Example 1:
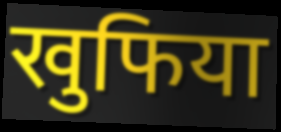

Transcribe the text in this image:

खुफिया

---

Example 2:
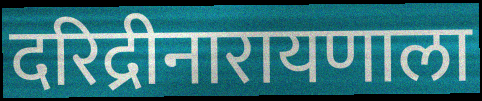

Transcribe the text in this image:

दरिद्रीनारायणाला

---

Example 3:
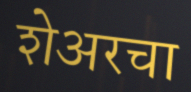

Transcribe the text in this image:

शेअरचा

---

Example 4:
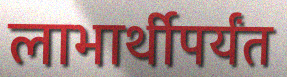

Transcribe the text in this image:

लाभार्थीपर्यंत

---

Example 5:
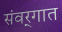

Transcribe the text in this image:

संवर्गात